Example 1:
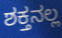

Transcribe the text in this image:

ಶಕ್ತನಲ್ಲ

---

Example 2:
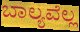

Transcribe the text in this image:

ಬಾಲ್ಯವೆಲ್ಲ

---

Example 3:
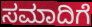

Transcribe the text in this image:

ಸಮಾದಿಗೆ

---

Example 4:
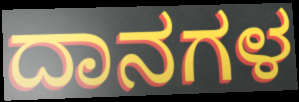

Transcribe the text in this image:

ದಾನಗಳ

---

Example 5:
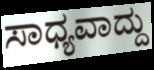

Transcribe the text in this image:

ಸಾಧ್ಯವಾದ್ದು